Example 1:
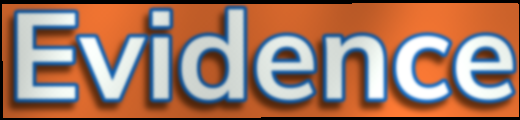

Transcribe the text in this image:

Evidence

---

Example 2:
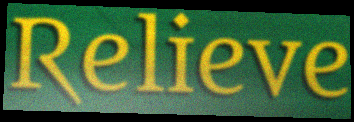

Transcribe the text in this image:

Relieve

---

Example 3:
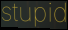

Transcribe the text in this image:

stupid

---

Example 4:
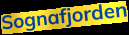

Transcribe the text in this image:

Sognafjorden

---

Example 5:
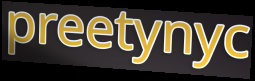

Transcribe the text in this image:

preetynyc